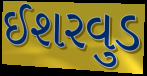
ઈશરવુડ